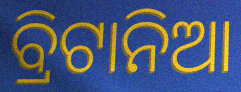
ବ୍ରିଟାନିଆ